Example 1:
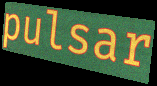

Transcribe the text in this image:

pulsar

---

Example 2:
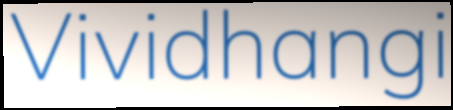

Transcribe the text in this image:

Vividhangi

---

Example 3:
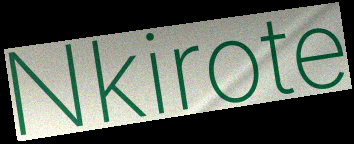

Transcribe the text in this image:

Nkirote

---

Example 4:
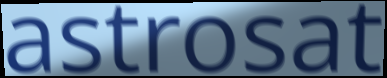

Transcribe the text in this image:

astrosat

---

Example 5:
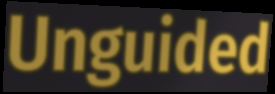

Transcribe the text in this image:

Unguided